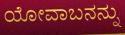
ಯೋವಾಬನನ್ನು